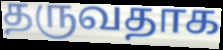
தருவதாக